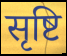
सृष्टि